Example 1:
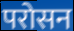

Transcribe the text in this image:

परोसन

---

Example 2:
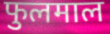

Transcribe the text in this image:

फुलमाल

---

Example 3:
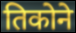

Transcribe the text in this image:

तिकोने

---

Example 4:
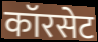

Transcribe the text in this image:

कॉरसेट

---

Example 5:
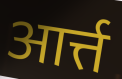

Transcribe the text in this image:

आर्त्त